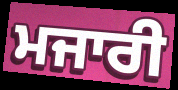
ਮਜਾਰੀ